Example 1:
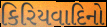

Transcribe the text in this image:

કિરિયવાદિનો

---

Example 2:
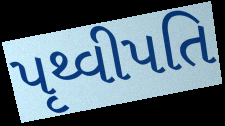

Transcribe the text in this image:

પૃથ્વીપતિ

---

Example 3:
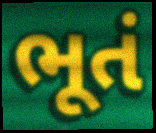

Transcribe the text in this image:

ભૂતં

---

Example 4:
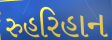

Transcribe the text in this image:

રુહરિહાન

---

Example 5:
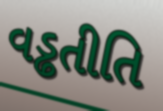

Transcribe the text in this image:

વડ્ઢતીતિ